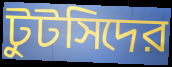
টুটসিদের